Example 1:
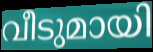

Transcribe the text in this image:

വീടുമായി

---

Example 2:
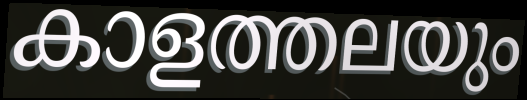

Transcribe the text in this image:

കാളത്തലയും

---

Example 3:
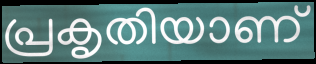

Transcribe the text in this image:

പ്രകൃതിയാണ്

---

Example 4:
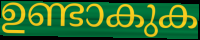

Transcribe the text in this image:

ഉണ്ടാകുക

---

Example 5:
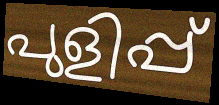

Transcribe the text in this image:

പുളിപ്പ്